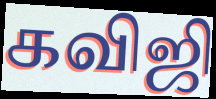
கவிஜி